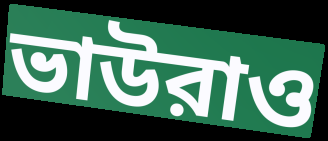
ভাউরাও